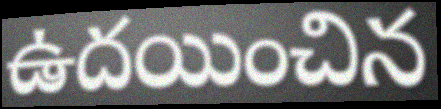
ఉదయించిన